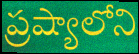
ప్రష్యాలోని